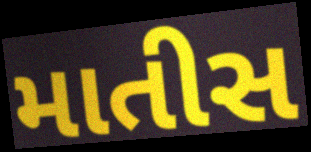
માતીસ